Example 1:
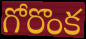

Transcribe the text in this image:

గోరొంక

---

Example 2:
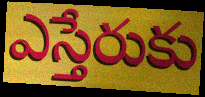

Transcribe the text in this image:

ఎస్తేరుకు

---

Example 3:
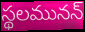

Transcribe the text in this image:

స్థలమునన్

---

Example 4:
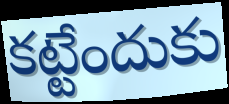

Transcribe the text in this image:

కట్టేందుకు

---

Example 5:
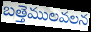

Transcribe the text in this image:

బత్తెములవలన